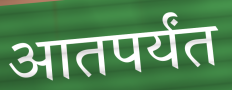
आतपर्यंत